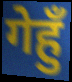
गेहुँ